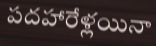
పదహారేళ్లయినా